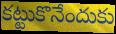
కట్టుకొనేందుకు